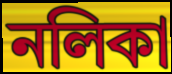
নলিকা